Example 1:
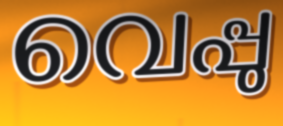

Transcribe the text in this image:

വെപ്പു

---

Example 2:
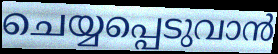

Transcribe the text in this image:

ചെയ്യപ്പെടുവാൻ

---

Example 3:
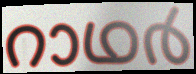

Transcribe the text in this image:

റാഥർ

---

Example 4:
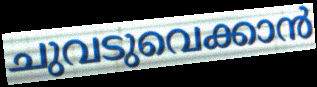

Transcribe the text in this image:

ചുവടുവെക്കാൻ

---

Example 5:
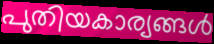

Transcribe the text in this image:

പുതിയകാര്യങ്ങൾ